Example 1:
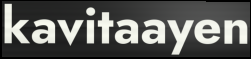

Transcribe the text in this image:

kavitaayen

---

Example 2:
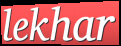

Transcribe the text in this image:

lekhar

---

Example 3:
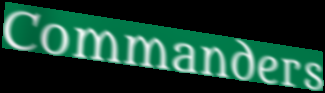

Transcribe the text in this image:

Commanders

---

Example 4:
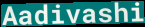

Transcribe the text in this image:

Aadivashi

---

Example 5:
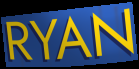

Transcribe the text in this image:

RYAN